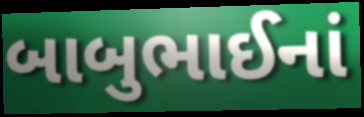
બાબુભાઈનાં